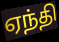
ஏந்தி